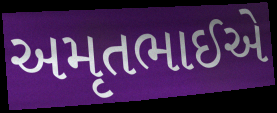
અમૃતભાઈએ